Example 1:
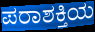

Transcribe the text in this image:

ಪರಾಶಕ್ತಿಯ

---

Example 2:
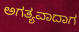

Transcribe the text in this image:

ಅಗತ್ಯವಾದಾಗ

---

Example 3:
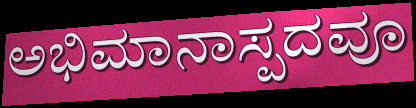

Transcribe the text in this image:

ಅಭಿಮಾನಾಸ್ಪದವೂ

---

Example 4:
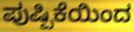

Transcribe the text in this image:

ಪುಷ್ಪಿಕೆಯಿಂದ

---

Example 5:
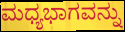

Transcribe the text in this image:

ಮಧ್ಯಭಾಗವನ್ನು